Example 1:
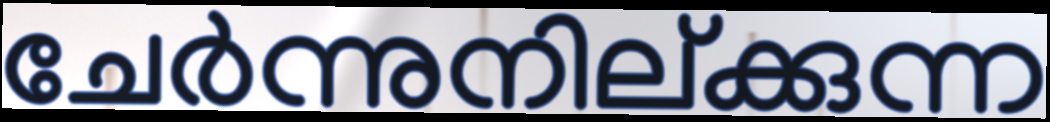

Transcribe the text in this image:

ചേർന്നുനില്ക്കുന്ന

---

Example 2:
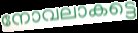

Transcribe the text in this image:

നോവലാകട്ടെ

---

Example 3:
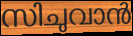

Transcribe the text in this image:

സിചുവാൻ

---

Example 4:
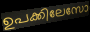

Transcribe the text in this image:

ഉപക്കിലേസോ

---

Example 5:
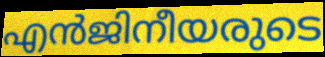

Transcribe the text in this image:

എൻജിനീയരുടെ